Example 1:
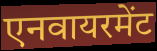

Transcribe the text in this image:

एनवायरमेंट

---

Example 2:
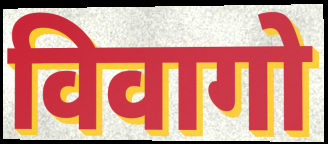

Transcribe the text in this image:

विवागो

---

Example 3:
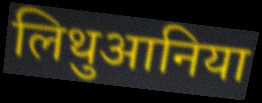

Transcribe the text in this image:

लिथुआनिया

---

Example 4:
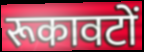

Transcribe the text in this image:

रूकावटों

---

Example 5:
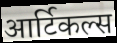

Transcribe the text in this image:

आर्टिकल्स